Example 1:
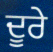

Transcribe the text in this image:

ਦੂਰੇ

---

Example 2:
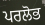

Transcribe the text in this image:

ਪਰਲੋਭ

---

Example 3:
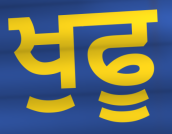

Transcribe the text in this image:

ਖੁਫੂ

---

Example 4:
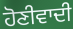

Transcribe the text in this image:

ਹੋਣੀਵਾਦੀ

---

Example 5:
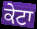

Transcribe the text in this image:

ਕੇਟਾ